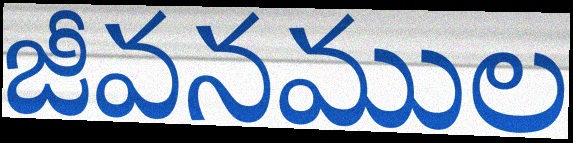
జీవనముల